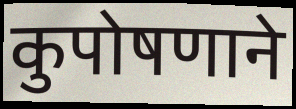
कुपोषणाने